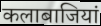
कलाबाजियां